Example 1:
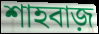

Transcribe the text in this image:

শাহবাজ়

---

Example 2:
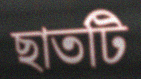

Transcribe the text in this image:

ছাতটি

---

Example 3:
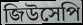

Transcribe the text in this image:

জিউসেপি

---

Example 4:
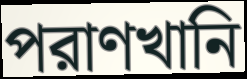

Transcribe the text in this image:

পরাণখানি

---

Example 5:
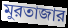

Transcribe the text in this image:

মুরতাজার